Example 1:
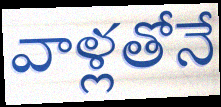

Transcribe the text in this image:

వాళ్లతోనే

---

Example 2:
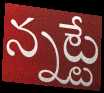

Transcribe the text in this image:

న్నట్టే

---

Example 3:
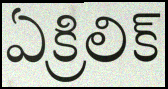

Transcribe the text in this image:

ఏక్రిలిక్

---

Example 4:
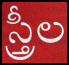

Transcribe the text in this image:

స్త్రీల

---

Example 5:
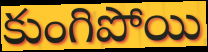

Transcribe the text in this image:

కుంగిపోయి